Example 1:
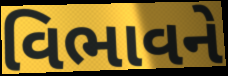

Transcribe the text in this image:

વિભાવને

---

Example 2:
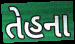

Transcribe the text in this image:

તેહના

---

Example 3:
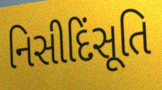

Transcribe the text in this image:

નિસીદિંસૂતિ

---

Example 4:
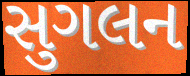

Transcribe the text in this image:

સુગલન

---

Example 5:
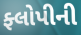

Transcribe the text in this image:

ફ્લોપીની